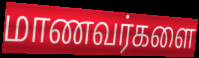
மாணவர்களை